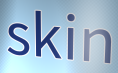
skin